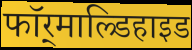
फॉर्माल्डिहाइड